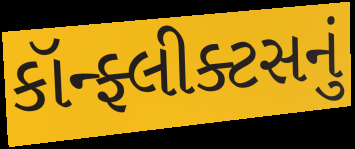
કૉન્ફ્લીક્ટસનું